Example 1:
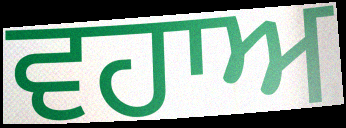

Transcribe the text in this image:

ਵਹਾਅ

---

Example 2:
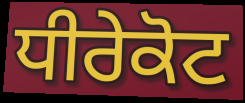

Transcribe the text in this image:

ਧੀਰੇਕੋਟ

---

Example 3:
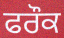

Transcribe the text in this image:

ਫਰੌਕ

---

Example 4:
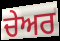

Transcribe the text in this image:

ਚੇਅਰ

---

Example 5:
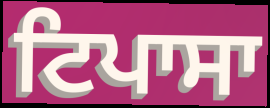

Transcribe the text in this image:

ਟਿਪਾਸਾ